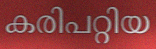
കരിപറ്റിയ